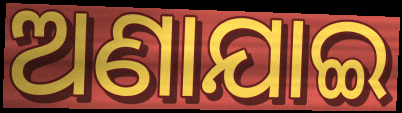
ଅଣାଯାଇ